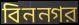
বিননগর